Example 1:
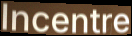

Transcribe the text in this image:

Incentre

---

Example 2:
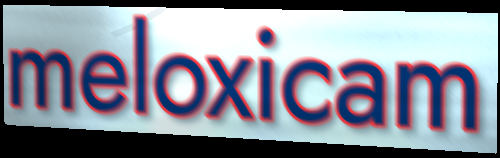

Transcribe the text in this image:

meloxicam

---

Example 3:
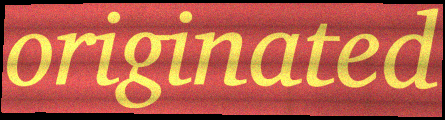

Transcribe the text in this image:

originated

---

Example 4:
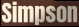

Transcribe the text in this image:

Simpson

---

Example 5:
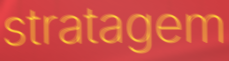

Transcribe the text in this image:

stratagem